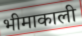
भीमाकाली